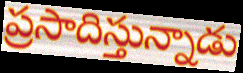
ప్రసాదిస్తున్నాడు